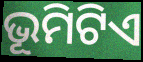
ଭୂମିଟିଏ